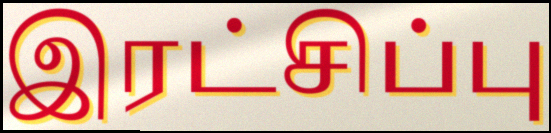
இரட்சிப்பு